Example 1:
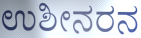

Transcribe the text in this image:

ಉಶೀನರನ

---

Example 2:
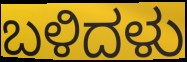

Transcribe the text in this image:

ಬಳಿದಳು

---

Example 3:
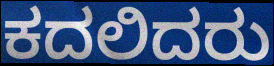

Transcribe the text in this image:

ಕದಲಿದರು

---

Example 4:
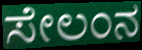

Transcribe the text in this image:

ಸೇಲಂನ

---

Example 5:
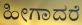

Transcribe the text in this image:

ಹೀಗಾದರೆ